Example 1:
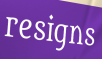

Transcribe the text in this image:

resigns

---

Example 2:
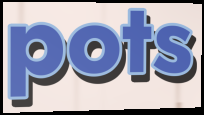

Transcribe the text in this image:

pots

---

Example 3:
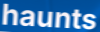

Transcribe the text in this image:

haunts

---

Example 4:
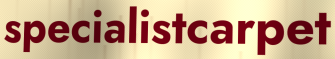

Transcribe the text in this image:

specialistcarpet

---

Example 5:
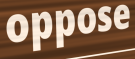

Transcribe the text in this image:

oppose